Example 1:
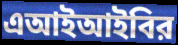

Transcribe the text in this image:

এআইআইবির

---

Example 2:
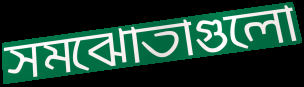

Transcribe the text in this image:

সমঝোতাগুলো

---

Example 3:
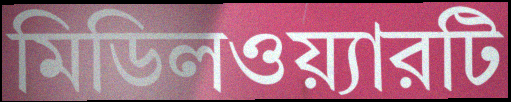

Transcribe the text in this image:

মিডিলওয়্যারটি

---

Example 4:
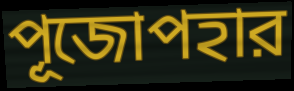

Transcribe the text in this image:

পূজোপহার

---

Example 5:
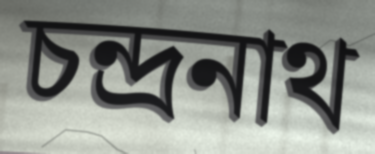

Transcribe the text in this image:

চন্দ্রনাথ